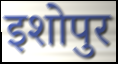
इशोपुर